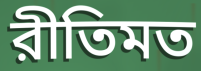
রীতিমত